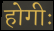
होगीः